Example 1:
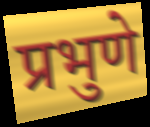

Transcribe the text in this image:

प्रभुणे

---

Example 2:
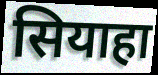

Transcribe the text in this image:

सियाहा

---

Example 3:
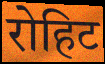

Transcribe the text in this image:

रोहिट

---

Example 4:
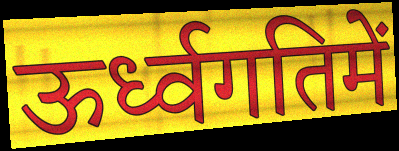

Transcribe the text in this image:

ऊर्ध्वगतिमें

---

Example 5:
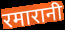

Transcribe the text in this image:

रमारानी